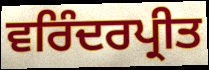
ਵਰਿੰਦਰਪ੍ਰੀਤ